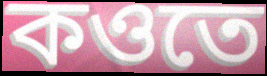
কওতে